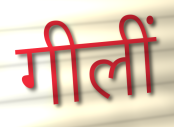
गीलीं